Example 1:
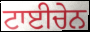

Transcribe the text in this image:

ਟਾਈਚੇਨ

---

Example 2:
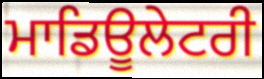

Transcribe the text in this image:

ਮਾਡਿਊਲੇਟਰੀ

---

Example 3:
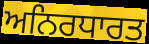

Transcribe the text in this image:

ਅਨਿਰਧਾਰਤ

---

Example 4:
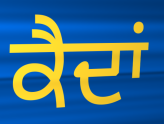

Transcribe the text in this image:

ਕੈਦਾਂ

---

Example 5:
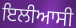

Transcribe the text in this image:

ਇਲੀਆਸੀ